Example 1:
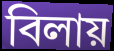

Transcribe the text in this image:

বিলায়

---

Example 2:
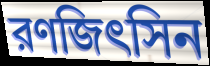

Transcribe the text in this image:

রণজিৎসিন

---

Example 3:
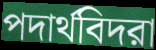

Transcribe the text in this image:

পদার্থবিদরা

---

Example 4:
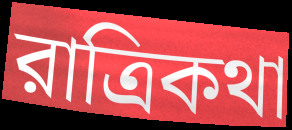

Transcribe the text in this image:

রাত্রিকথা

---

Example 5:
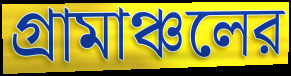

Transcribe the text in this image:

গ্রামাঞ্চলের